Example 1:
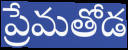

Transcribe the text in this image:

ప్రేమతోడ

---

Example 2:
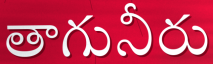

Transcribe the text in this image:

తాగునీరు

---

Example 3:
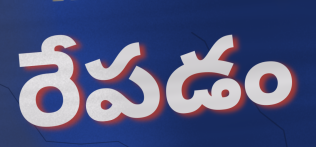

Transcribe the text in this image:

రేపడం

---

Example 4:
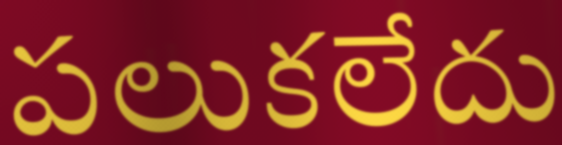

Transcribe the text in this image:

పలుకలేదు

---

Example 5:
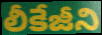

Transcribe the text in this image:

లీకేజీని